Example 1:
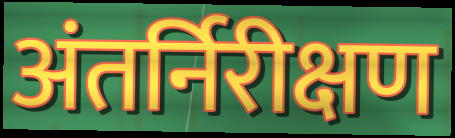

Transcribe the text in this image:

अंतर्निरीक्षण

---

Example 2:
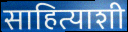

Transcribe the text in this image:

साहित्याशी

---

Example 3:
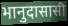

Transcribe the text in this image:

भानुदासासी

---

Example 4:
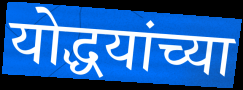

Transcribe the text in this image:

योद्धयांच्या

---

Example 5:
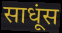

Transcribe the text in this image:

साधूंस